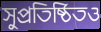
সুপ্রতিষ্ঠিতও